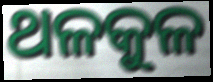
ଥଳକୁଳ